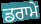
ਡਰਾਮੇ